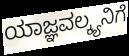
ಯಾಜ್ಞವಲ್ಕ್ಯನಿಗೆ